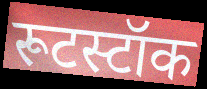
रूटस्टॉक